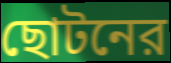
ছোটনের